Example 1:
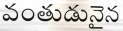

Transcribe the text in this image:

వంతుడునైన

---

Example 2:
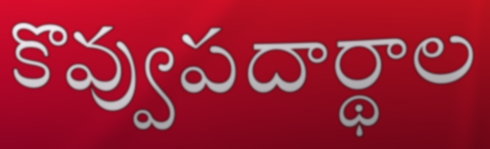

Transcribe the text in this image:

కొవ్వుపదార్థాల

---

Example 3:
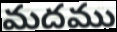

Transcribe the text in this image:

మదము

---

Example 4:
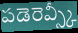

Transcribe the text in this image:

పడెరెవ్స్కీ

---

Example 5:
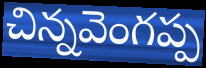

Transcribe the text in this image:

చిన్నవెంగప్ప